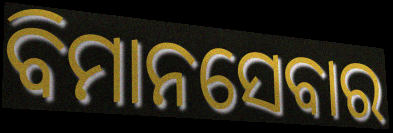
ବିମାନସେବାର